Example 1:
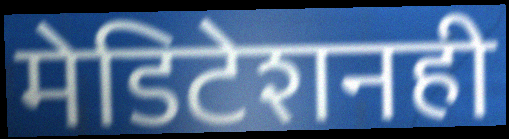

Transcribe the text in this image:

मेडिटेशनही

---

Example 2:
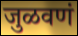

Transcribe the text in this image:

जुळवणं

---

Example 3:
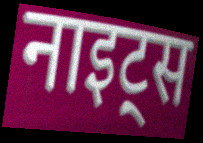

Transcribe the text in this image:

नाइट्‌स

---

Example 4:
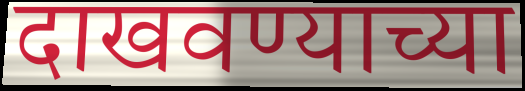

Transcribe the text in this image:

दाखवण्याच्या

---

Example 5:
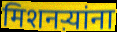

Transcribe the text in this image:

मिशनऱ्‍यांना